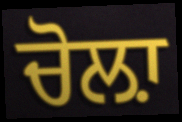
ਚੋਲ਼ਾ